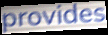
provides